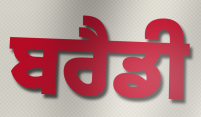
ਬਰੈਡੀ